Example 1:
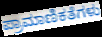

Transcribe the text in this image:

ಪ್ರಾಮಾಣಿಕತೆಗಳು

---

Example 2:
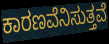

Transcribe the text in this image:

ಕಾರಣವೆನಿಸುತ್ತವೆ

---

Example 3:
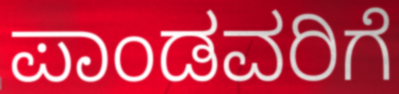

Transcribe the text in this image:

ಪಾಂಡವರಿಗೆ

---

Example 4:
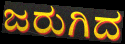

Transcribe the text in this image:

ಜರುಗಿದ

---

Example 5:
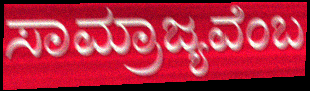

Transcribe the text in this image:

ಸಾಮ್ರಾಜ್ಯವೆಂಬ